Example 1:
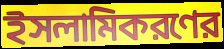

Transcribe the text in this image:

ইসলামিকরণের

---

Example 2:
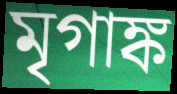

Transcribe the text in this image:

মৃগাঙ্ক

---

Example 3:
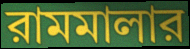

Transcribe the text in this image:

রামমালার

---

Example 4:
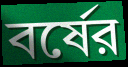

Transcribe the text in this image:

বর্ষের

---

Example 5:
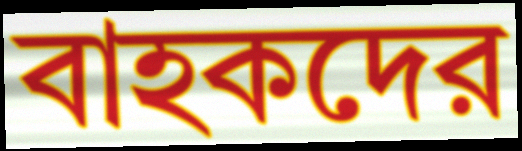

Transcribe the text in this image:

বাহকদের